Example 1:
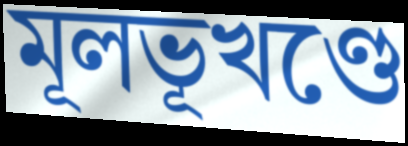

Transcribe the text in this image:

মূলভূখণ্ডে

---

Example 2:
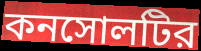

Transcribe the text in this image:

কনসোলটির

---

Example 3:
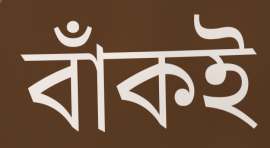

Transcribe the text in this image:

বাঁকই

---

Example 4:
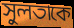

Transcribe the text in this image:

সুলতাকে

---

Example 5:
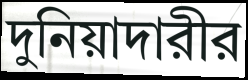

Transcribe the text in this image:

দুনিয়াদারীর